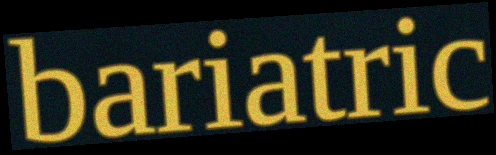
bariatric